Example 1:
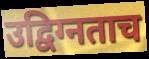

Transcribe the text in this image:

उद्विग्नताच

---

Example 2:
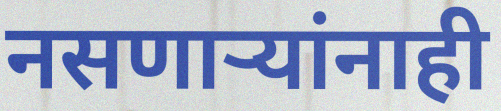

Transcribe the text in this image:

नसणार्‍यांनाही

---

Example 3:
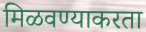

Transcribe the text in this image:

मिळवण्याकरता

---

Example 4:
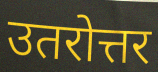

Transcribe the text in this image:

उतरोत्तर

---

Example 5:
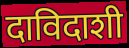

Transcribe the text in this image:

दाविदाशी